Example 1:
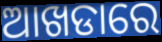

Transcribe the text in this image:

ଆଖଡାରେ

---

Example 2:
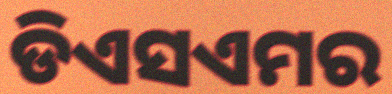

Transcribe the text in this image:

ଡିଏସଏମର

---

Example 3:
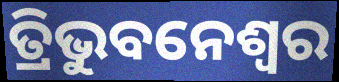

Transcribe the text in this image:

ତ୍ରିଭୁବନେଶ୍ବର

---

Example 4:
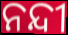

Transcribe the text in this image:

ନନ୍ଦୀ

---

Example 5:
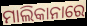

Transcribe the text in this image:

ମାଲିକାନାରେ